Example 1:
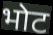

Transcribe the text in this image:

भोट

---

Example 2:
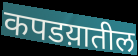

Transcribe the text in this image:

कपडय़ातील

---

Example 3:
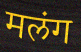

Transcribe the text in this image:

मलंग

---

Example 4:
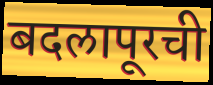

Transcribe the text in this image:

बदलापूरची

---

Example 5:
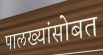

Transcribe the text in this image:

पालख्यांसोबत